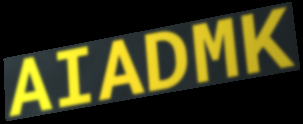
AIADMK